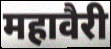
महावैरी